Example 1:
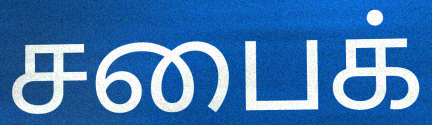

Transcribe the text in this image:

சபைக்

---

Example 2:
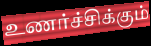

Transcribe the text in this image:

உணர்ச்சிக்கும்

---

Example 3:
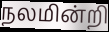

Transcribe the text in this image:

நலமின்றி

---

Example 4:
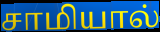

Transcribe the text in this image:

சாமியால்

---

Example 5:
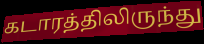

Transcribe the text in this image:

கடாரத்திலிருந்து